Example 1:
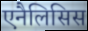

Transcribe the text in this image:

एनैलिसिस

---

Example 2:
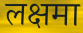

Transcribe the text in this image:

लक्षमा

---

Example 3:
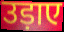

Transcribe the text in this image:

उड़ाए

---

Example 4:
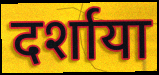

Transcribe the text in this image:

दर्शाया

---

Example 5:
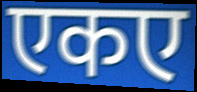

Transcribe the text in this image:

एकए